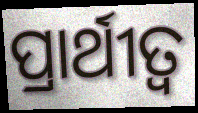
ପ୍ରାର୍ଥୀତ୍ଵ